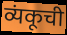
व्यंकूची